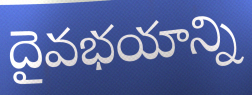
దైవభయాన్ని